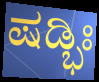
ಷಡ್ಭಿಃ